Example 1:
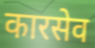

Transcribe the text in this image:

कारसेव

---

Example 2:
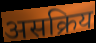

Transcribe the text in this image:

असक्रिय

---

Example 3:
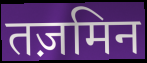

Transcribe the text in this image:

तज़मिन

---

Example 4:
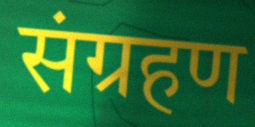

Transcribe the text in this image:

संग्रहण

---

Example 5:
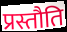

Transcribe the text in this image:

प्रस्तौति